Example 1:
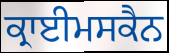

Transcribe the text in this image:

ਕ੍ਰਾਈਮਸਕੈਨ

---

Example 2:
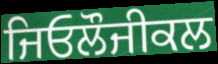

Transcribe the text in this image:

ਜਿਓਲੌਜੀਕਲ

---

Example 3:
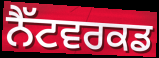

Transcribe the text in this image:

ਨੈੱਟਵਰਕਡ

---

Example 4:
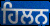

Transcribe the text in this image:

ਹਿਲਨ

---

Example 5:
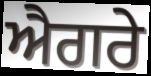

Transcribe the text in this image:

ਐਗਰੇ